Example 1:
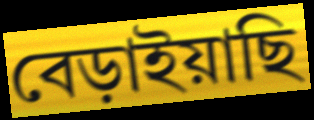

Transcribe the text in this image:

বেড়াইয়াছি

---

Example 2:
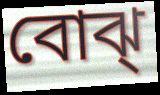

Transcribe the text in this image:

বোঝ্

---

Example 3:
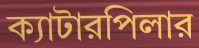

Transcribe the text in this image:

ক্যাটারপিলার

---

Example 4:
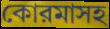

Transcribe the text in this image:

কোরমাসহ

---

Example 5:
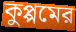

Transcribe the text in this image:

কুপ্পমের